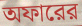
অফারের